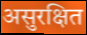
असुरक्षित